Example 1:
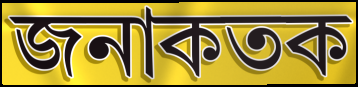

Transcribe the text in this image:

জনাকতক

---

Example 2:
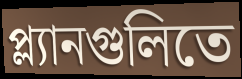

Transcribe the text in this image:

প্ল্যানগুলিতে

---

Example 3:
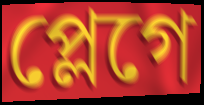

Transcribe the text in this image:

প্লেগে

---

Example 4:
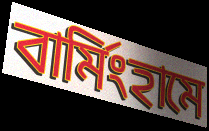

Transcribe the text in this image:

বার্মিংহামে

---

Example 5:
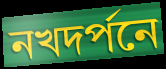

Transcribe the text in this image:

নখদর্পনে